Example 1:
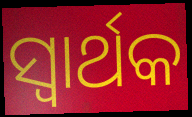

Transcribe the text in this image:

ସ୍ବାର୍ଥକ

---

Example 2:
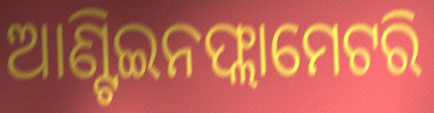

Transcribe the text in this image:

ଆଣ୍ଟିଇନଫ୍ଲାମେଟରି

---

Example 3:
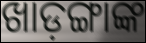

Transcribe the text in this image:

ଖାଡ଼ଙ୍ଗାଙ୍କ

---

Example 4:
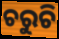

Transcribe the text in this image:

ଚରୁଚି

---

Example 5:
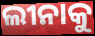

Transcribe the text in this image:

ଲୀନାକୁ